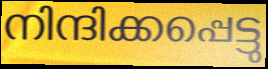
നിന്ദിക്കപ്പെട്ടു